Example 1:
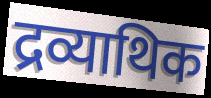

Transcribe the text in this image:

द्रव्याथिक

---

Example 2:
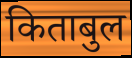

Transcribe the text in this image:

किताबुल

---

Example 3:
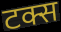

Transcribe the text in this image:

टक्स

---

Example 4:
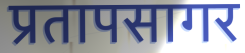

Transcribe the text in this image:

प्रतापसागर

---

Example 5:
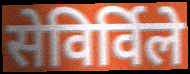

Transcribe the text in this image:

सेविर्विले